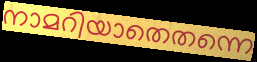
നാമറിയാതെതന്നെ